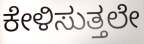
ಕೇಳಿಸುತ್ತಲೇ